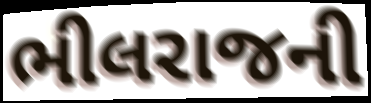
ભીલરાજની